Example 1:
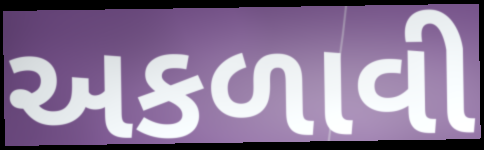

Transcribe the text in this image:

અકળાવી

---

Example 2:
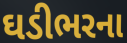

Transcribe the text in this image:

ઘડીભરના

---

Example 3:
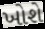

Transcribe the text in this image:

ખોશે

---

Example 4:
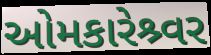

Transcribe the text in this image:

ઓમકારેશ્ર્વર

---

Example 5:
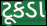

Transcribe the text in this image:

ટૂકડા